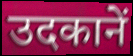
उदकानें